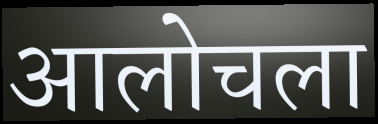
आलोचला